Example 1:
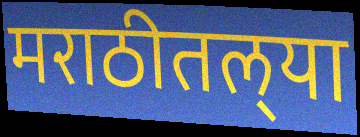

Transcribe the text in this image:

मराठीतल्या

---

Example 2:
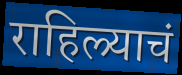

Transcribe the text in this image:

राहिल्याचं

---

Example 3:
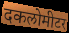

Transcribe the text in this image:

दकलोमीटर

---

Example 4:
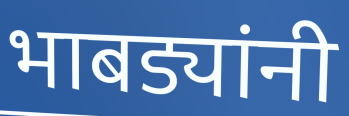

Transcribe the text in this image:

भाबड्यांनी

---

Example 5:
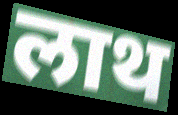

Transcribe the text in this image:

लाथ